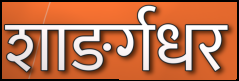
शाङर्गधर